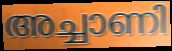
അച്ചാണി